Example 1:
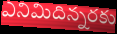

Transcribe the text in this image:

ఎనిమిదిన్నరకు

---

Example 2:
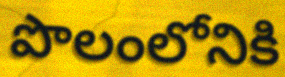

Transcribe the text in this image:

పొలంలోనికి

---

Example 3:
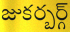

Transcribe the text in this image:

జుకర్బర్గ్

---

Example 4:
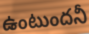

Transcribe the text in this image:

ఉంటుందనీ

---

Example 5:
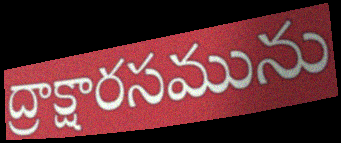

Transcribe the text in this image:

ద్రాక్షారసమును